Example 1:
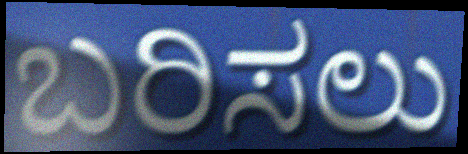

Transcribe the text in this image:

ಬರಿಸಲು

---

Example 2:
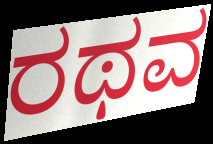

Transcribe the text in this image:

ರಥವ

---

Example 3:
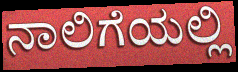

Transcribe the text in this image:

ನಾಲಿಗೆಯಲ್ಲಿ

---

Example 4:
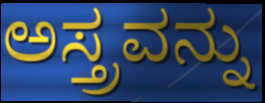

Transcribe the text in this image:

ಅಸ್ತ್ರವನ್ನು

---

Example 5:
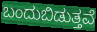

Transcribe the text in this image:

ಬಂದುಬಿಡುತ್ತವೆ